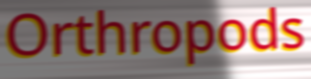
Orthropods